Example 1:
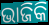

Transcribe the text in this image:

ଭାଜିକି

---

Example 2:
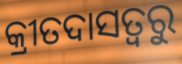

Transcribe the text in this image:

କ୍ରୀତଦାସତ୍ୱରୁ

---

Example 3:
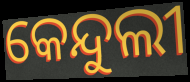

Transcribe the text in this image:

କେନ୍ଦୁଲୀ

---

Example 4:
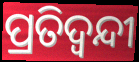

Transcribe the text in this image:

ପ୍ରତିଦ୍ଵନ୍ଦୀ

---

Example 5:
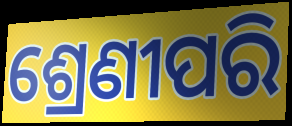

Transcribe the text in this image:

ଶ୍ରେଣୀପରି